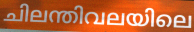
ചിലന്തിവലയിലെ